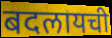
बदलायची